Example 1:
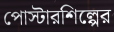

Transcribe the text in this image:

পোস্টারশিল্পের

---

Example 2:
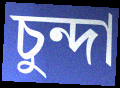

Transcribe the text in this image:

চুন্দা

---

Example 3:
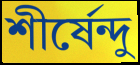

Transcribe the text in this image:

শীর্ষেন্দু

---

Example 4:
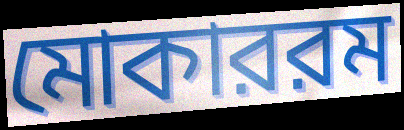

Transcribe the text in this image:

মোকাররম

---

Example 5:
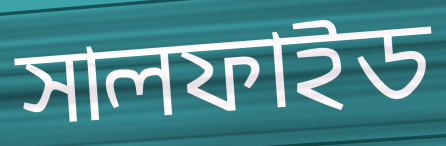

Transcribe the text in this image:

সালফাইড